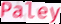
Paley